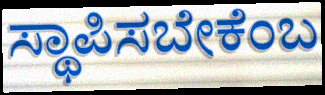
ಸ್ಥಾಪಿಸಬೇಕೆಂಬ